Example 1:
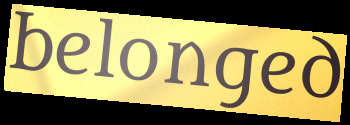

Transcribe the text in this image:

belonged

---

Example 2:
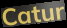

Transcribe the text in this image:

Catur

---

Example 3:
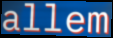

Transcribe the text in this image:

allem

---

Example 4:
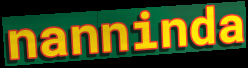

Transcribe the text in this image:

nanninda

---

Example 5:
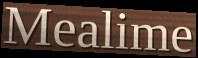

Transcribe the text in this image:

Mealime